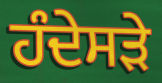
ਹੰਦੇਸੜੇ